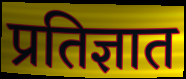
प्रतिज्ञात